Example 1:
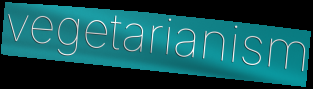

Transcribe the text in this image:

vegetarianism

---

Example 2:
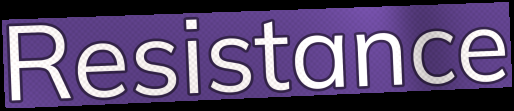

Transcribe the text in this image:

Resistance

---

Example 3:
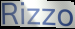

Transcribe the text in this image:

Rizzo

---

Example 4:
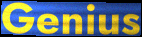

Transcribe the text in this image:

Genius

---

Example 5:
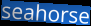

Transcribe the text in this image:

seahorse